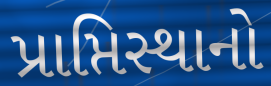
પ્રાપ્તિસ્થાનો